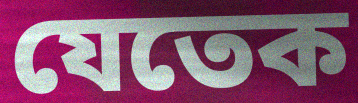
যেতেক